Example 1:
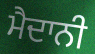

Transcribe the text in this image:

ਮੈਦਾਨੀ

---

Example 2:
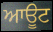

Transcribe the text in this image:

ਆਊਟ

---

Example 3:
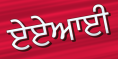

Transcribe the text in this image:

ਏਏਆਈ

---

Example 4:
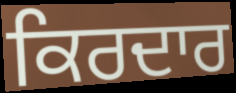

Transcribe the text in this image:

ਕਿਰਦਾਰ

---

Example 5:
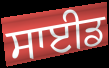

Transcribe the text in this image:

ਸਾਈਡ